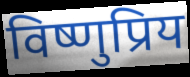
विष्णुप्रिय